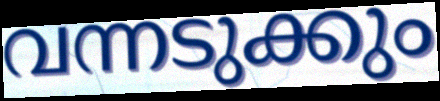
വന്നടുക്കും